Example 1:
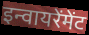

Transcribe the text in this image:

इन्वायरेंमेंट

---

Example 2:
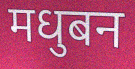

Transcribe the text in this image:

मधुबन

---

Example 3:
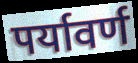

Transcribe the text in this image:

पर्यावर्ण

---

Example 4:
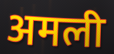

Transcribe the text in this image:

अमली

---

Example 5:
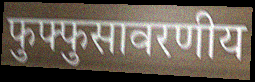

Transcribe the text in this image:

फुफ्फुसावरणीय